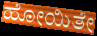
ಹೋಯಿತೇ